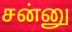
சன்னு